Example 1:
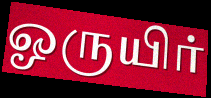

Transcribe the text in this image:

ஓருயிர்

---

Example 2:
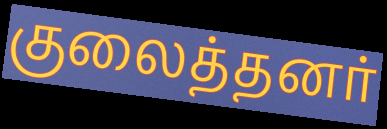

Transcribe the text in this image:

குலைத்தனர்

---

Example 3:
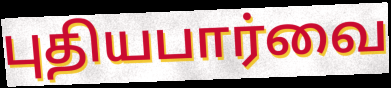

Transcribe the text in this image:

புதியபார்வை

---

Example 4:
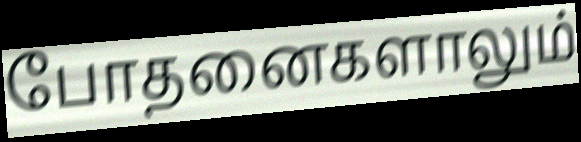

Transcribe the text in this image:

போதனைகளாலும்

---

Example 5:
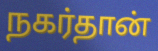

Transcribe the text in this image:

நகர்தான்